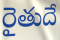
రైతుదే